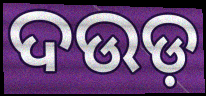
ଦଉଡ଼